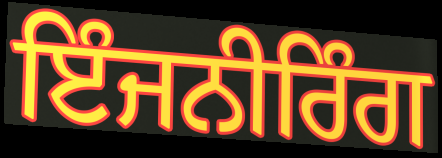
ਇੰਜਨੀਰਿੰਗ